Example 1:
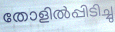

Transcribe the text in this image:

തോളിൽപ്പിടിച്ചു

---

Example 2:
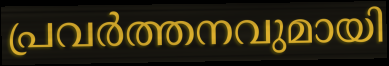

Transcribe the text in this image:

പ്രവർത്തനവുമായി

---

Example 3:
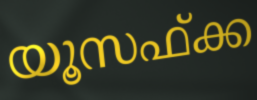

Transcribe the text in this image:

യൂസഫ്ക്ക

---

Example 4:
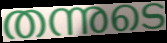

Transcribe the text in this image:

തന്നുടെ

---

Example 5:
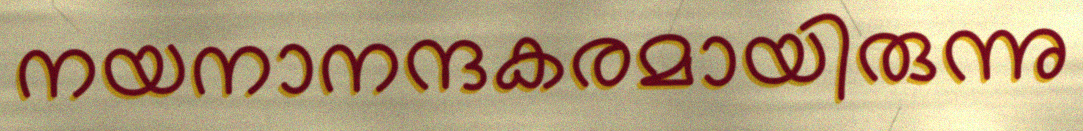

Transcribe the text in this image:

നയനാനന്ദകരമായിരുന്നു